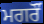
ਮਗਰੌਂ